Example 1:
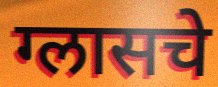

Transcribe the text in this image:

ग्लासचे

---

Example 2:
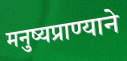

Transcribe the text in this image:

मनुष्यप्राण्याने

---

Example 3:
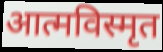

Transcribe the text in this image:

आत्मविस्मृत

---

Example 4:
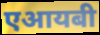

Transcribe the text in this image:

एआयबी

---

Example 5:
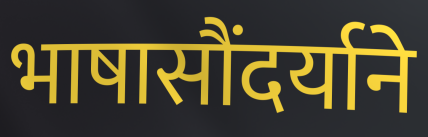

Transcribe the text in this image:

भाषासौंदर्याने